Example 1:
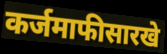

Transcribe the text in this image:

कर्जमाफीसारखे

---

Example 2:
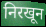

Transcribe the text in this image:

निरखून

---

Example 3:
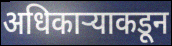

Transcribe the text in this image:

अधिकाऱ्याकडून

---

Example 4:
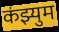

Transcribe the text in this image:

कंझ्युम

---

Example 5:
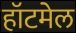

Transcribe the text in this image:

हॉटमेल